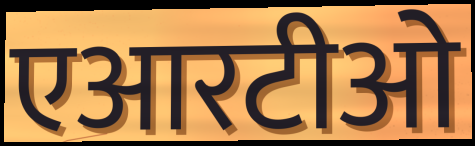
एआरटीओ